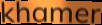
khamer